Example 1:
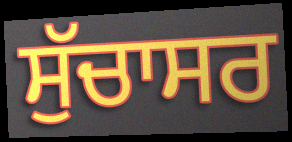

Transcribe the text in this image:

ਸੁੱਚਾਸਰ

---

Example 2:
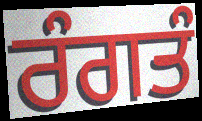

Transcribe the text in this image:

ਰੰਗਤੰ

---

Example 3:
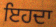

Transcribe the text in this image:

ਇਹਦਾ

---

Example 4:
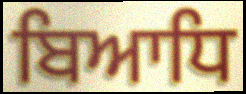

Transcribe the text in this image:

ਬਿਆਧਿ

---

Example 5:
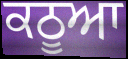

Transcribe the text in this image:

ਕਠੂਆ